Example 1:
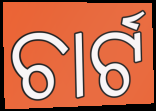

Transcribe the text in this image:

ଚାର୍ଟ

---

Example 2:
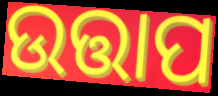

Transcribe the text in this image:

ଉତ୍ତାପ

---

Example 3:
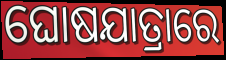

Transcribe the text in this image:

ଘୋଷଯାତ୍ରାରେ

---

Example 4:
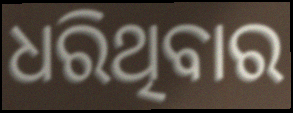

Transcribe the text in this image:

ଧରିଥିବାର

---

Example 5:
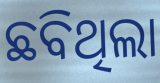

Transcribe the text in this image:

ଛବିଥିଲା